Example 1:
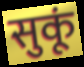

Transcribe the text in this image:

सुकूं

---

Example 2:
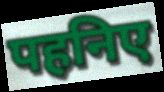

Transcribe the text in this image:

पहनिए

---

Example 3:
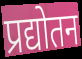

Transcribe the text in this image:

प्रद्योतन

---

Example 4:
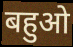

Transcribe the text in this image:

बहुओ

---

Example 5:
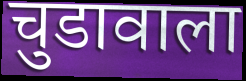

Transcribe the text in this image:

चुडावाला